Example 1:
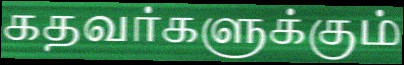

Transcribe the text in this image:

கதவர்களுக்கும்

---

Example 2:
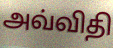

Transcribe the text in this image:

அவ்விதி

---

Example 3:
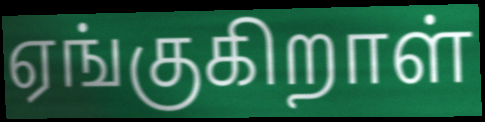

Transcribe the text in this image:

ஏங்குகிறாள்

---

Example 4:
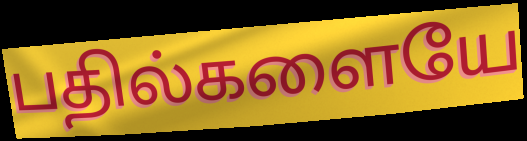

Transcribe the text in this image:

பதில்களையே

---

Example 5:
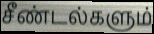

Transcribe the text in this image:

சீண்டல்களும்